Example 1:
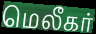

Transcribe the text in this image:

மெலீகர்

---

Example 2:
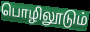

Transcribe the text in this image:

பொழிலூடும்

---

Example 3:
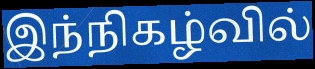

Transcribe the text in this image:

இந்நிகழ்வில்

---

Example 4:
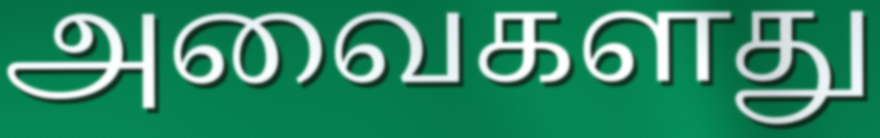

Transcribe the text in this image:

அவைகளது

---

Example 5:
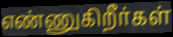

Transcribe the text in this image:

எண்ணுகிறீர்கள்